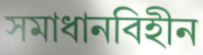
সমাধানবিহীন